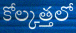
కోల్కత్తలో